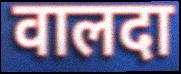
वालदा